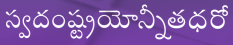
స్వదంష్ట్రయోన్నీతధరో